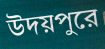
উদয়পুরে